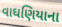
વાઘણિયાના